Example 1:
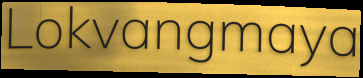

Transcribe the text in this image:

Lokvangmaya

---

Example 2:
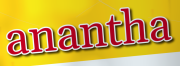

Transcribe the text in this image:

anantha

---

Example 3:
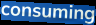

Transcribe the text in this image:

consuming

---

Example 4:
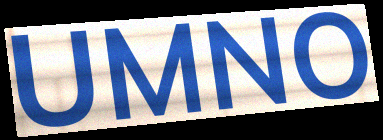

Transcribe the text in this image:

UMNO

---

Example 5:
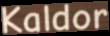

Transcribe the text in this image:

Kaldor